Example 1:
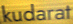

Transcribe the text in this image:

kudarat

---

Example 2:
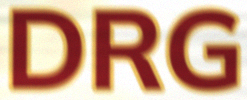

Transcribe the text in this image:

DRG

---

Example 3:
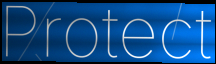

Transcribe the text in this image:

Protect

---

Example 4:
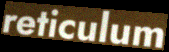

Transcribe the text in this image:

reticulum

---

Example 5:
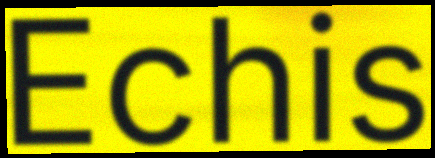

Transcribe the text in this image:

Echis